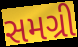
સમગ્રી